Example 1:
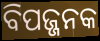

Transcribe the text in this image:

ବିପଜ୍ଜନକ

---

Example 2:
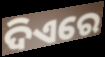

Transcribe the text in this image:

ଦିଏରେ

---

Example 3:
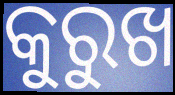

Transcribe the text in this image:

କୁରୁଖ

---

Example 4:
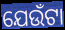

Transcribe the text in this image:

ଯେଉଁଟା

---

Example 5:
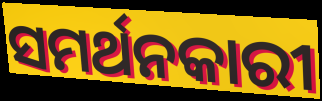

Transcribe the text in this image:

ସମର୍ଥନକାରୀ